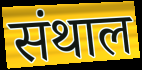
संथाल